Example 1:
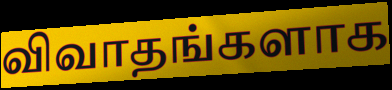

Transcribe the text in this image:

விவாதங்களாக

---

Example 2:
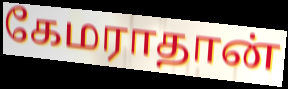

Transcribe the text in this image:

கேமராதான்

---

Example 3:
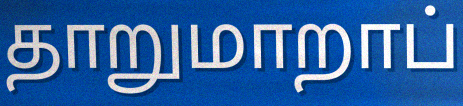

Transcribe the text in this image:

தாறுமாறாப்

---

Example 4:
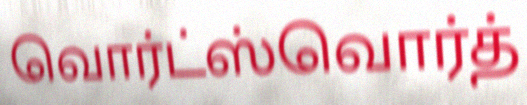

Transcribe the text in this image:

வொர்ட்ஸ்வொர்த்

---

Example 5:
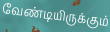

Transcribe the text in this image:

வேண்டியிருக்கும்